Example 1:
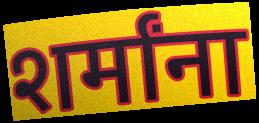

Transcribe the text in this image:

शर्मांना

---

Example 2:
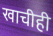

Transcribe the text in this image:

खाचीही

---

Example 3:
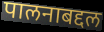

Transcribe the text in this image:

पालनाबद्दल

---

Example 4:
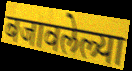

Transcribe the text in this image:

बजावलेल्या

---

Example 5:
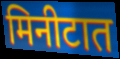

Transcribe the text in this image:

मिनीटात